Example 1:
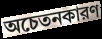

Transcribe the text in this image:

অচেতনকারণ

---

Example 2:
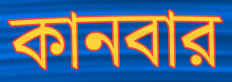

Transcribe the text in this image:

কানবার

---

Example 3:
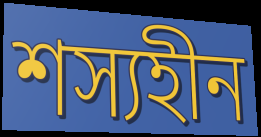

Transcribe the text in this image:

শস্যহীন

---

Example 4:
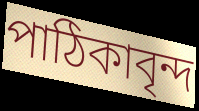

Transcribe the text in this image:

পাঠিকাবৃন্দ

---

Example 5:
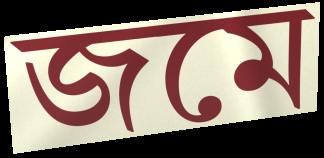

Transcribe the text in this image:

জমে